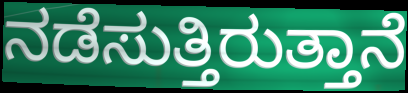
ನಡೆಸುತ್ತಿರುತ್ತಾನೆ